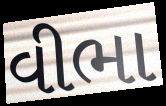
વીભા